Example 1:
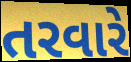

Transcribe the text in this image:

તરવારે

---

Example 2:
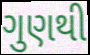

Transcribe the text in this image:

ગુણથી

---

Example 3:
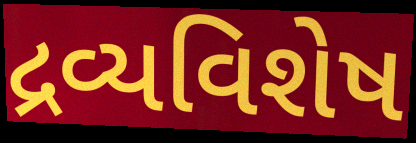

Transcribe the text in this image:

દ્રવ્યવિશેષ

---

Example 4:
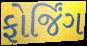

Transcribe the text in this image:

ફોર્જિંગ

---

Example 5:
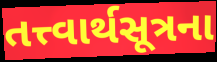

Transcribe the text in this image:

તત્ત્વાર્થસૂત્રના